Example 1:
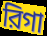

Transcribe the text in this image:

রিগা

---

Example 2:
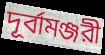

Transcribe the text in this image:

দূর্বামঞ্জরী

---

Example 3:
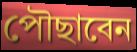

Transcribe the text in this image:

পৌছাবেন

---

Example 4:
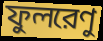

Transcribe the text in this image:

ফুলরেণু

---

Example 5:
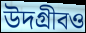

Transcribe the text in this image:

উদগ্রীবও